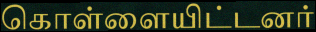
கொள்ளையிட்டனர்